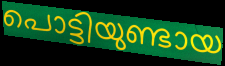
പൊട്ടിയുണ്ടായ